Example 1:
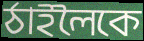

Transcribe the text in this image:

ঠাইলৈকে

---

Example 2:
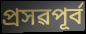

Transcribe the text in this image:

প্ৰসৱপূৰ্ব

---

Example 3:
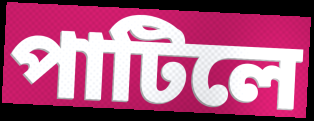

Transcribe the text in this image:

পাটিলে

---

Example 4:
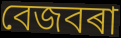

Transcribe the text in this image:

বেজবৰা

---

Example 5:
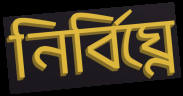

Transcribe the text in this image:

নিৰ্বিঘ্নে